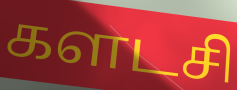
களடசி